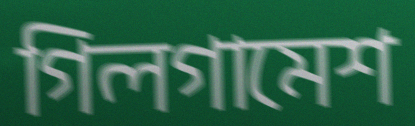
গিলগামেশ